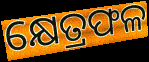
କ୍ଷେତ୍ରଫଳ